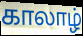
காலாழ்